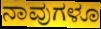
ನಾವುಗಳೂ